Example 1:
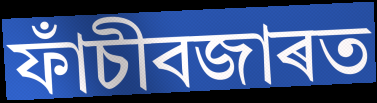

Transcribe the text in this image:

ফাঁচীবজাৰত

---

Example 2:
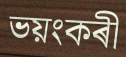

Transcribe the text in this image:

ভয়ংকৰী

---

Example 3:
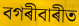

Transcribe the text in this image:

বগৰীবাৰীত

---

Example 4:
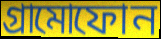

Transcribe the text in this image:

গ্ৰামোফোন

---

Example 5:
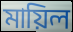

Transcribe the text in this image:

মায়িল